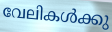
വേലികൾക്കു